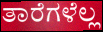
ತಾರೆಗಳೆಲ್ಲ